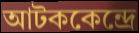
আটককেন্দ্রে